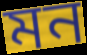
মন